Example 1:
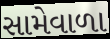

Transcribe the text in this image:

સામેવાળા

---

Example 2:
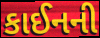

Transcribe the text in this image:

કાઈનની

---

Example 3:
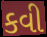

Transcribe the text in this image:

કવી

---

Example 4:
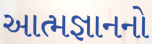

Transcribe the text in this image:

આત્મજ્ઞાનનો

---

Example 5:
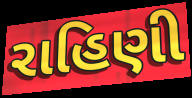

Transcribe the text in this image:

રાહિણી